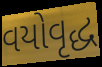
વયોવૃદ્ધ